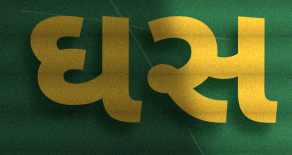
ઘસ